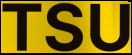
TSU